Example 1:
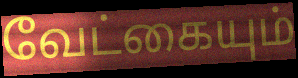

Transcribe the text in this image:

வேட்கையும்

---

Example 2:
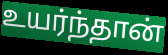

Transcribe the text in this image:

உயர்ந்தான்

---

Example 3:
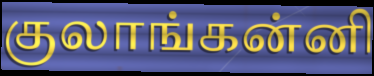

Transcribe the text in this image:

குலாங்கன்னி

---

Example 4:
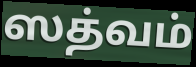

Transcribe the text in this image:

ஸத்வம்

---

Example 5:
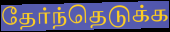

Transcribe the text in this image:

தேர்ந்தெடுக்க